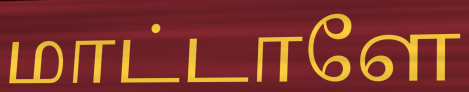
மாட்டாளே